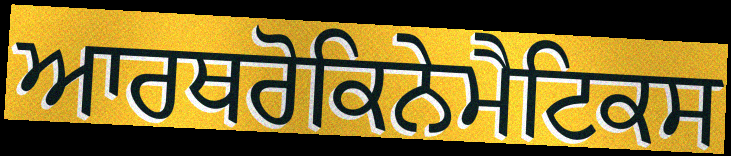
ਆਰਥਰੋਕਿਨੇਮੈਟਿਕਸ